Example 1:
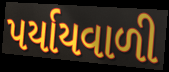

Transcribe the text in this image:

પર્યાયવાળી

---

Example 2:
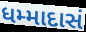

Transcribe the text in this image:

ધમ્માદાસં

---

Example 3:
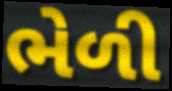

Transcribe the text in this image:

ભેળી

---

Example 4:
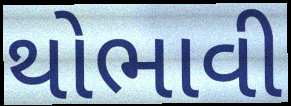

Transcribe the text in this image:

થોભાવી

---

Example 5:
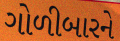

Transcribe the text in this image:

ગોળીબારને